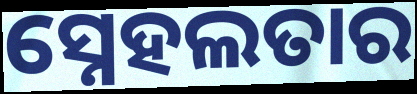
ସ୍ନେହଲତାର